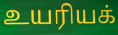
உயரியக்